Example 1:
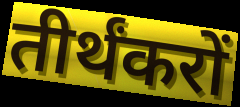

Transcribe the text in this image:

तीर्थंकरों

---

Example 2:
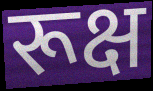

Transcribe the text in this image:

रूक्ष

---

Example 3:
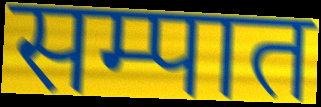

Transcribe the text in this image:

सम्पात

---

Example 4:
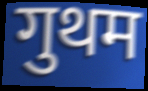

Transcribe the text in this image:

गुथम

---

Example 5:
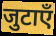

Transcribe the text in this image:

जुटाएँ